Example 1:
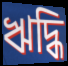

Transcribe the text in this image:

ঋদ্ধি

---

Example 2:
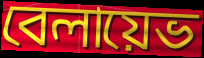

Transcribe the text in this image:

বেলায়েভ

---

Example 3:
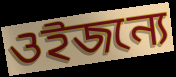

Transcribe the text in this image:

ওইজন্যে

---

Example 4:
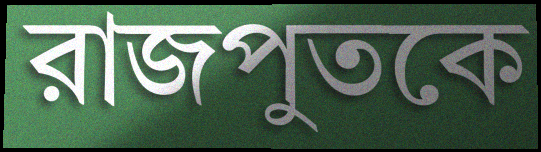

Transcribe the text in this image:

রাজপুতকে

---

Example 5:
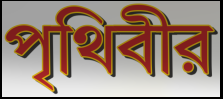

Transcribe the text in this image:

পৃথিবীর